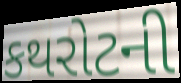
કથરોટની